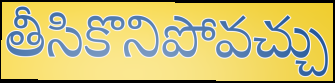
తీసికొనిపోవచ్చు